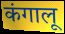
कंगालू